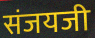
संजयजी